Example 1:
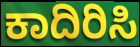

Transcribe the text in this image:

ಕಾದಿರಿಸಿ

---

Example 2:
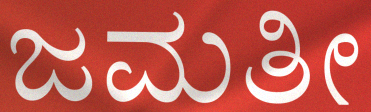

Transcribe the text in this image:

ಜಮತೀ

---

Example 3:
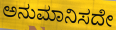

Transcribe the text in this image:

ಅನುಮಾನಿಸದೇ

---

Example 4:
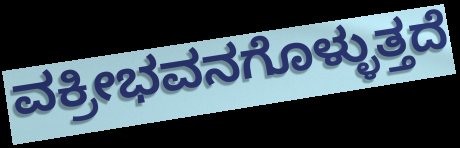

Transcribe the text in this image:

ವಕ್ರೀಭವನಗೊಳ್ಳುತ್ತದೆ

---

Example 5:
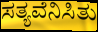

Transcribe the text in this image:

ಸತ್ಯವೆನಿಸಿತು